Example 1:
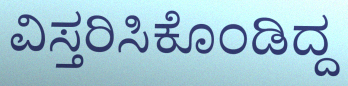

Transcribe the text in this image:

ವಿಸ್ತರಿಸಿಕೊಂಡಿದ್ದ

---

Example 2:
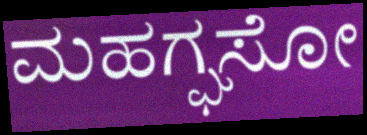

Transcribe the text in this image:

ಮಹಗ್ಘಸೋ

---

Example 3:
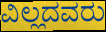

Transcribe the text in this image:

ವಿಲ್ಲದವರು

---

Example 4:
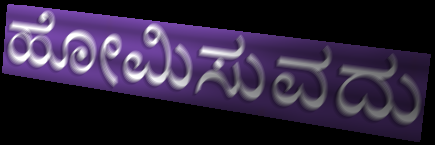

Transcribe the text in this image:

ಹೋಮಿಸುವದು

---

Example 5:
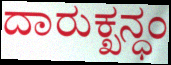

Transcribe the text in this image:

ದಾರುಕ್ಖನ್ಧಂ